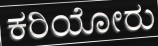
ಕರಿಯೋರು